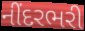
નીંદરભરી